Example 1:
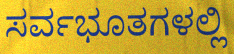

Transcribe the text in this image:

ಸರ್ವಭೂತಗಳಲ್ಲಿ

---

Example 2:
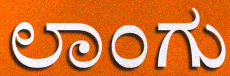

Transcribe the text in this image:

ಲಾಂಗು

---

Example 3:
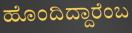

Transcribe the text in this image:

ಹೊಂದಿದ್ದಾರೆಂಬ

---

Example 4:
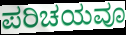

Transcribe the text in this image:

ಪರಿಚಯವೂ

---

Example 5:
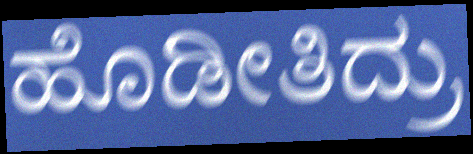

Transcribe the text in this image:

ಹೊಡೀತಿದ್ರು